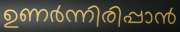
ഉണർന്നിരിപ്പാൻ